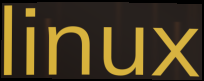
linux